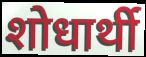
शोधार्थी